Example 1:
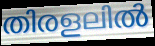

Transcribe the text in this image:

തിരളലിൽ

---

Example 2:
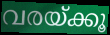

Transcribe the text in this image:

വരയ്ക്കൂ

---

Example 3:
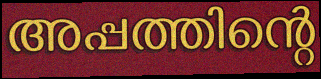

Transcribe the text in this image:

അപ്പത്തിന്റെ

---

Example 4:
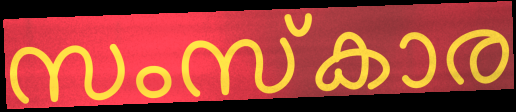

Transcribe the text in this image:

സംസ്കാര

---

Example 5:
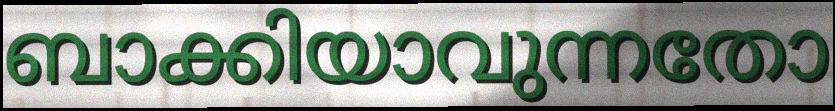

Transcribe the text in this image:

ബാക്കിയാവുന്നതോ